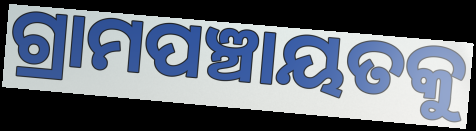
ଗ୍ରାମପଞ୍ଚାୟତକୁ